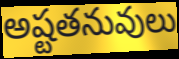
అష్టతనువులు